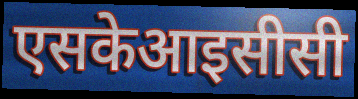
एसकेआइसीसी